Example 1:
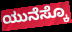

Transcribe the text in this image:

ಯುನೆಸ್ಕೊ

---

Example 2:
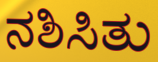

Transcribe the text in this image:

ನಶಿಸಿತು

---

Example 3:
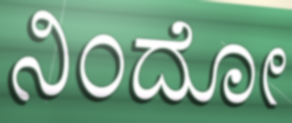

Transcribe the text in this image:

ನಿಂದೋ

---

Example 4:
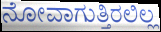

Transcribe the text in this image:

ನೋವಾಗುತ್ತಿರಲಿಲ್ಲ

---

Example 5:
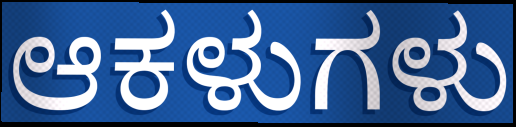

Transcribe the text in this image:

ಆಕಳುಗಳು